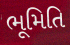
ભૂમિતિ